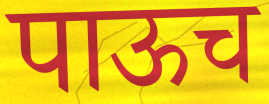
पाऊच